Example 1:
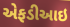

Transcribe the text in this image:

એફડીઆઇ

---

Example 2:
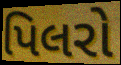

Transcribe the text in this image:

પિલરો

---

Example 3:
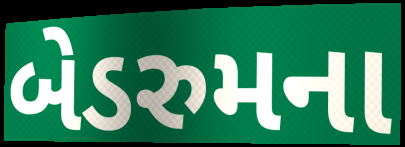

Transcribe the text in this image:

બેડરુમના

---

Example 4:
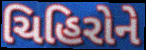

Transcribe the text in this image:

ચિહિરોને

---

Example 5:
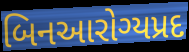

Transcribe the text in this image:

બિનઆરોગ્યપ્રદ